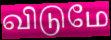
விடுமே